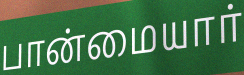
பான்மையார்